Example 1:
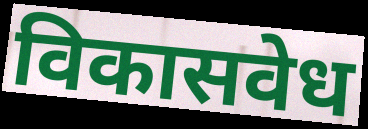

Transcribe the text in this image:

विकासवेध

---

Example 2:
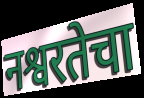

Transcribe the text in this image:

नश्वरतेचा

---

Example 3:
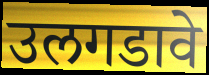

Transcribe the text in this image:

उलगडावे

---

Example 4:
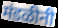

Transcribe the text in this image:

मंडळीनी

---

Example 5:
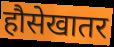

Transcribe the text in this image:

हौसेखातर